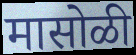
मासोळी